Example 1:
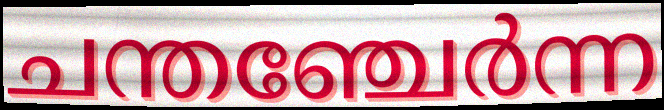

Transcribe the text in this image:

ചന്തഞ്ചേർന്ന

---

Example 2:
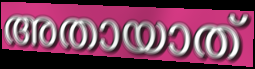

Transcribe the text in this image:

അതായാത്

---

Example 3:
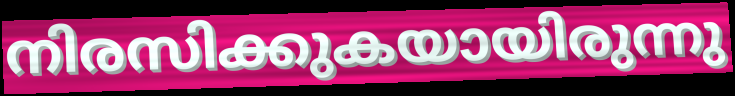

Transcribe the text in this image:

നിരസിക്കുകയായിരുന്നു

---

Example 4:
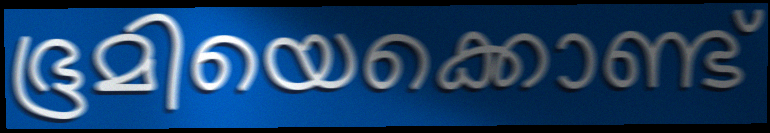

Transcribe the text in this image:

ഭൂമിയെക്കൊണ്ട്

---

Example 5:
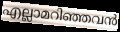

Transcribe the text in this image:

എല്ലാമറിഞ്ഞവൻ